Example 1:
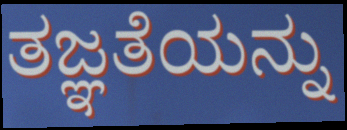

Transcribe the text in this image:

ತಜ್ಞತೆಯನ್ನು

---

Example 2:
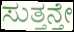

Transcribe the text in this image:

ಸುತ್ತನ್ತೇ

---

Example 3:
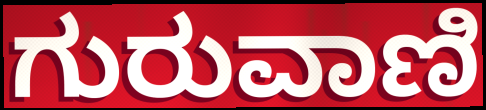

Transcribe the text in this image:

ಗುರುವಾಣಿ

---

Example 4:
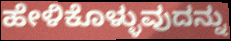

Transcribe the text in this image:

ಹೇಳಿಕೊಳ್ಳುವುದನ್ನು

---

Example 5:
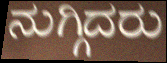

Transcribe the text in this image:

ನುಗ್ಗಿದರು